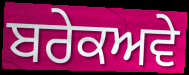
ਬਰੇਕਅਵੇ